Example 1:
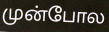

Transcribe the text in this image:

முன்போல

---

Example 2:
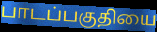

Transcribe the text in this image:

பாடப்பகுதியை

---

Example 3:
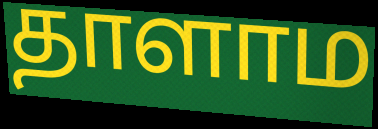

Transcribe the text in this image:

தாளாம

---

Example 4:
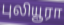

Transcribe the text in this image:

புலியூரா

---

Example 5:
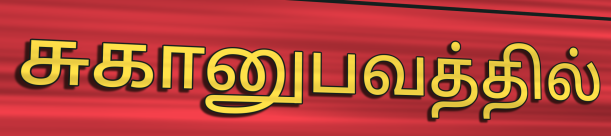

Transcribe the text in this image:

சுகானுபவத்தில்